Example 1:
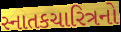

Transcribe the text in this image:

સ્નાતકચારિત્રનો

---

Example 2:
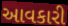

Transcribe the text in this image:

આવકારી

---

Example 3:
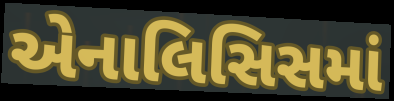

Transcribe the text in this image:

એનાલિસિસમાં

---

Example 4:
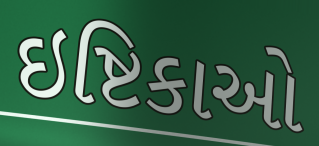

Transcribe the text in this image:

ઇષ્ટિકાઓ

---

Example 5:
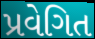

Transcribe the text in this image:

પ્રવેગિત